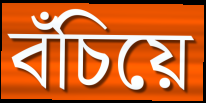
বঁচিয়ে